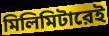
মিলিমিটারেই